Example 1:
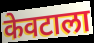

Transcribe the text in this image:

केवटाला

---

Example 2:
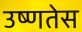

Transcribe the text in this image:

उष्णतेस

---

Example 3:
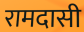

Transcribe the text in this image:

रामदासी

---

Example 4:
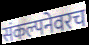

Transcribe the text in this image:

संकल्पनेवरच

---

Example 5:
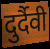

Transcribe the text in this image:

दुर्दैवी